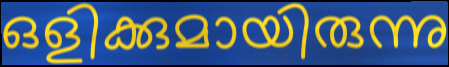
ഒളിക്കുമായിരുന്നു